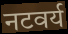
नटवर्य